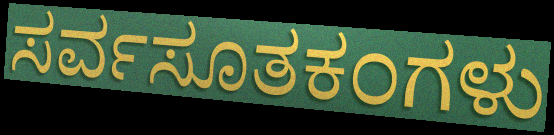
ಸರ್ವಸೂತಕಂಗಳು